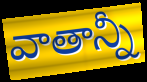
వాతాన్నీ